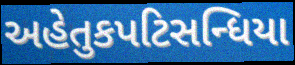
અહેતુકપટિસન્ધિયા